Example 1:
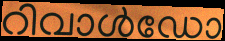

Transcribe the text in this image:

റിവാൾഡോ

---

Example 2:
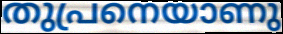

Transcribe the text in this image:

തുപ്രനെയാണു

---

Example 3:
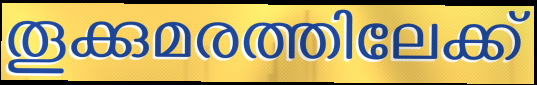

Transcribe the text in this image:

തൂക്കുമരത്തിലേക്ക്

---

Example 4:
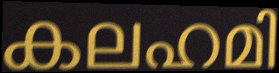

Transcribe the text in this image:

കലഹമി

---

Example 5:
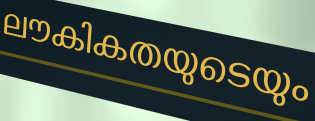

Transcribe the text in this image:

ലൗകികതയുടെയും